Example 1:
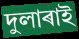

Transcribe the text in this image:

দুলাৰাই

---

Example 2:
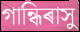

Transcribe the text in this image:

গান্ধিৰাসু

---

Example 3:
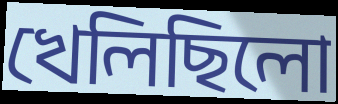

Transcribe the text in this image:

খেলিছিলো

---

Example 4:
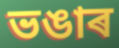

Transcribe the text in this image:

ভঙাৰ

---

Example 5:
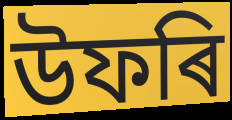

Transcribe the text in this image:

উফৰি